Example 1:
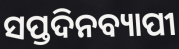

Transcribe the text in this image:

ସପ୍ତଦିନବ୍ୟାପୀ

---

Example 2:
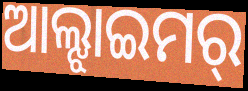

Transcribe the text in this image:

ଆଲ୍ଝାଇମର୍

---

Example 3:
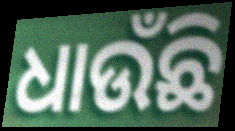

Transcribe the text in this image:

ଧାଉଁଛି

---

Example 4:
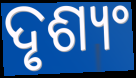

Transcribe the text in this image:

ଦୃଶ୍ୟଂ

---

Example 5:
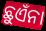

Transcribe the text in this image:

ଛୁଏଁନା